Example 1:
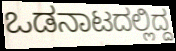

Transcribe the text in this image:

ಒಡನಾಟದಲ್ಲಿದ್ದ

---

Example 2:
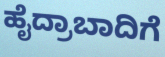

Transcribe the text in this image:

ಹೈದ್ರಾಬಾದಿಗೆ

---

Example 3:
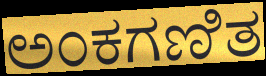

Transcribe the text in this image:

ಅಂಕಗಣಿತ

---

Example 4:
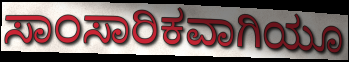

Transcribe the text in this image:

ಸಾಂಸಾರಿಕವಾಗಿಯೂ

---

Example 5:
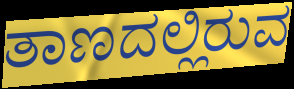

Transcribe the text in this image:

ತಾಣದಲ್ಲಿರುವ